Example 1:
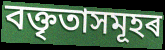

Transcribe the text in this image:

বক্তৃতাসমূহৰ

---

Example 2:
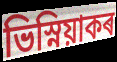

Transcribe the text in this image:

ভিস্নিয়াকৰ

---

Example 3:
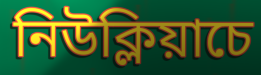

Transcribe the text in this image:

নিউক্লিয়াচে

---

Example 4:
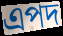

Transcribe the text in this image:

এপদ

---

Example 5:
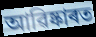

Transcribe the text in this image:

আৱিষ্কাৰত